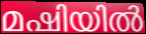
മഷിയിൽ